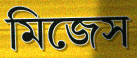
মিজেস